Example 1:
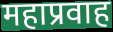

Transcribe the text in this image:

महाप्रवाह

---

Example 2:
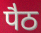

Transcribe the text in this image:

पैठ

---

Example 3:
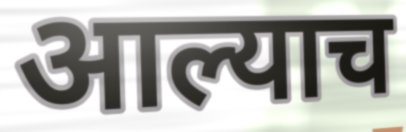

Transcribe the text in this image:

आल्याच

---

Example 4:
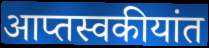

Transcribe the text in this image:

आप्तस्वकीयांत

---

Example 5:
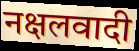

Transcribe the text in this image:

नक्षलवादी